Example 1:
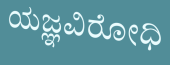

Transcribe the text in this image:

ಯಜ್ಞವಿರೋಧಿ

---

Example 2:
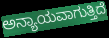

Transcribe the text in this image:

ಅನ್ಯಾಯವಾಗುತ್ತಿದೆ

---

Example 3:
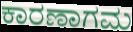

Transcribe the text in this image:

ಕಾರಣಾಗಮ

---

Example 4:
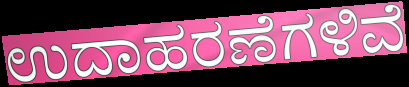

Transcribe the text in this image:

ಉದಾಹರಣೆಗಳಿವೆ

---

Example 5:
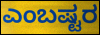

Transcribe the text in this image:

ಎಂಬಷ್ಟರ